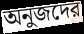
অনুজদের